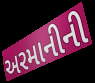
અરમાનીની